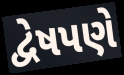
દ્વેષપણે